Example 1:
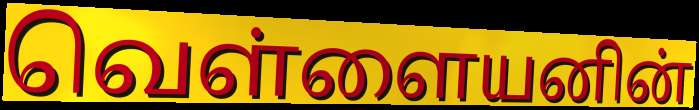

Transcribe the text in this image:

வெள்ளையனின்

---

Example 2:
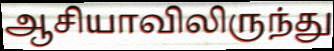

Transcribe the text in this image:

ஆசியாவிலிருந்து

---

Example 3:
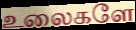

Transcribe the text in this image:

உலைகளே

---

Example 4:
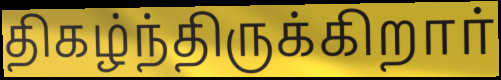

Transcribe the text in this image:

திகழ்ந்திருக்கிறார்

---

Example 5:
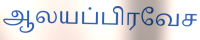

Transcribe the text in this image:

ஆலயப்பிரவேச